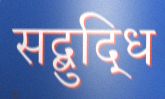
सद्बुद्धि